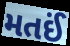
મતઈં